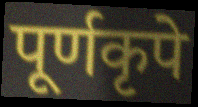
पूर्णकृपे